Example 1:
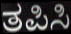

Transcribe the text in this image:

ತಪಿಸಿ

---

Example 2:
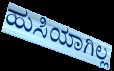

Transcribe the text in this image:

ಹುಸಿಯಾಗಿಲ್ಲ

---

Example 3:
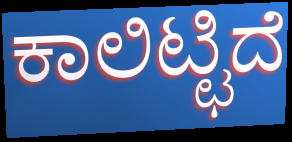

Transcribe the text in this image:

ಕಾಲಿಟ್ಟಿದೆ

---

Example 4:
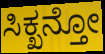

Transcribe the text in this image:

ಸಿಕ್ಖನ್ತೋ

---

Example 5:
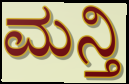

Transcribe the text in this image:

ಮನ್ತಿ